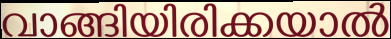
വാങ്ങിയിരിക്കയാൽ